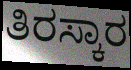
ತಿರಸ್ಕಾರ